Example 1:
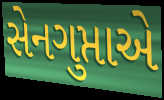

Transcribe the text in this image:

સેનગુપ્તાએ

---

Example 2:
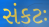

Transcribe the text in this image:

સંકટઃ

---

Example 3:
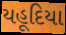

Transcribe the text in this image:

યહૂદિયા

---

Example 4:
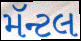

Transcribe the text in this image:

મૅન્ટલ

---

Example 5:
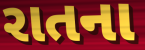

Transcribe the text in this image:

રાતના